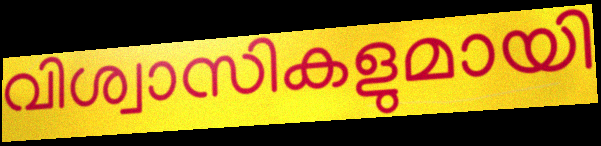
വിശ്വാസികളുമായി